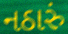
નઠારું